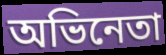
অভিনেতা